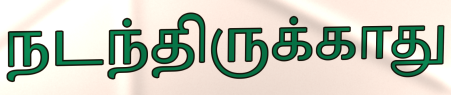
நடந்திருக்காது